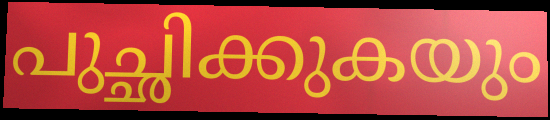
പുച്ഛിക്കുകയും